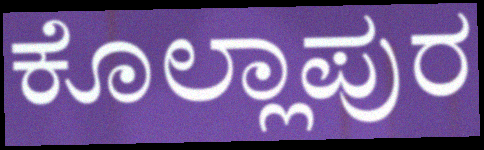
ಕೊಲ್ಲಾಪುರ